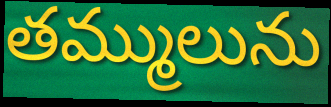
తమ్ములును